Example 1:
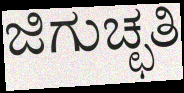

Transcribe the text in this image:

ಜಿಗುಚ್ಛತಿ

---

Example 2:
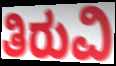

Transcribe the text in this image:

ತಿರುವಿ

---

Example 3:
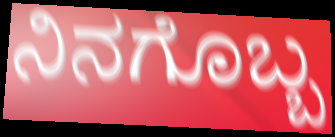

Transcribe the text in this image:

ನಿನಗೊಬ್ಬ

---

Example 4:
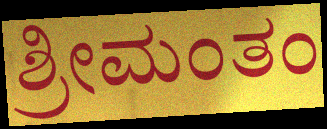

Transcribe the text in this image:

ಶ್ರೀಮಂತಂ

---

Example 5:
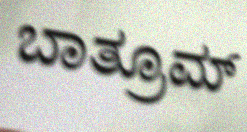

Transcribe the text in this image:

ಬಾತ್ರೂಮ್